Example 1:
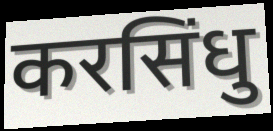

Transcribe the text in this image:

करसिंधु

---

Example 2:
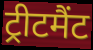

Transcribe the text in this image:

ट्रीटमैंट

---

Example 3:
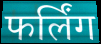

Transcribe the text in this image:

फर्लिंग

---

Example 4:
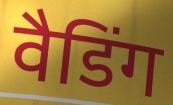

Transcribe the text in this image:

वैडिंग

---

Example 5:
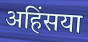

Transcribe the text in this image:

अहिंसया